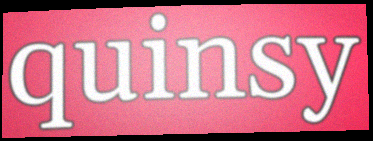
quinsy